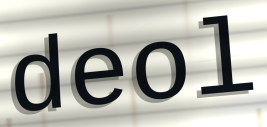
deol